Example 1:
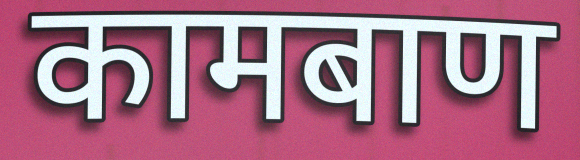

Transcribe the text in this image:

कामबाण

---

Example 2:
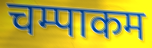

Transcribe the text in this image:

चम्पाकम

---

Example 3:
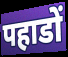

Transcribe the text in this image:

पहाडों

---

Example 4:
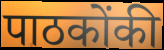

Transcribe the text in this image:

पाठकोंकी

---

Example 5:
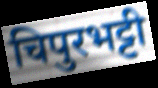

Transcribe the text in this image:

चिपुरभट्टी